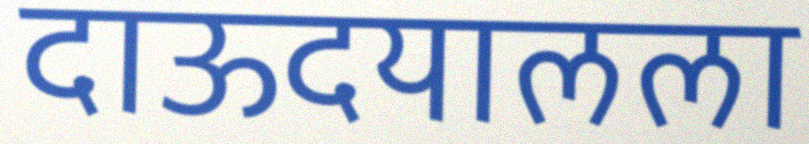
दाऊदयालला